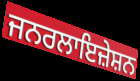
ਜਨਰਲਾਇਜ਼ੇਸ਼ਨ